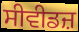
ਸੀਵੀਡਜ਼